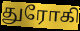
துரோகி